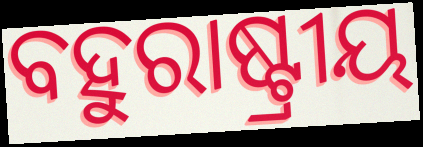
ବହୁରାଷ୍ଟ୍ରୀୟ